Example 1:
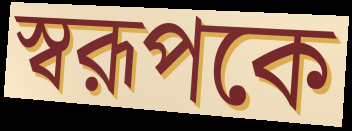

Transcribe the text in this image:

স্বরূপকে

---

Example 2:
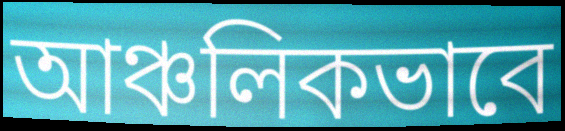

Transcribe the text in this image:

আঞ্চলিকভাবে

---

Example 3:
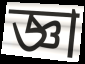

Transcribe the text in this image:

জ্ঞা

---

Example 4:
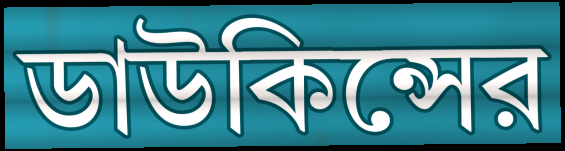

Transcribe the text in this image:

ডাউকিন্সের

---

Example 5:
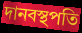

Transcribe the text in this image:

দানবস্থপতি